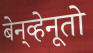
बेन्‌व्हेनूतो